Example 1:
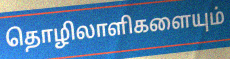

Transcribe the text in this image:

தொழிலாளிகளையும்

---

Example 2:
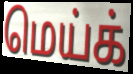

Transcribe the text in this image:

மெய்க்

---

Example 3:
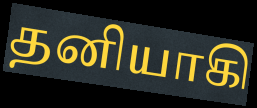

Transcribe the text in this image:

தனியாகி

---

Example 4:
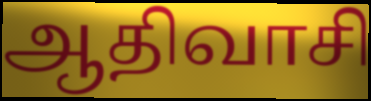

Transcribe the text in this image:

ஆதிவாசி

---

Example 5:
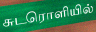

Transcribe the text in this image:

சுடரொளியில்